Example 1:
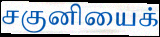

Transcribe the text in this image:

சகுனியைக்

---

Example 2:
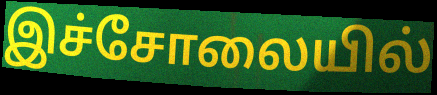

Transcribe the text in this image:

இச்சோலையில்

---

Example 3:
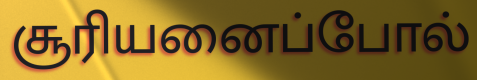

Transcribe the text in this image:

சூரியனைப்போல்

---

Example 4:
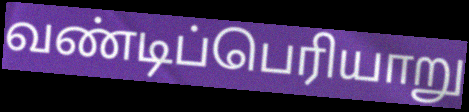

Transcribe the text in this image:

வண்டிப்பெரியாறு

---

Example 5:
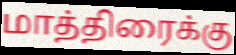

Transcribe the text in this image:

மாத்திரைக்கு